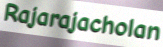
Rajarajacholan